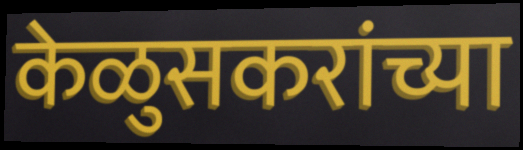
केळुसकरांच्या